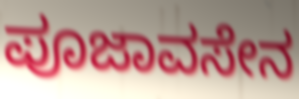
ಪೂಜಾವಸೇನ